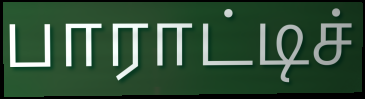
பாராட்டிச்